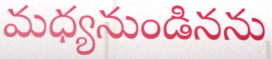
మధ్యనుండినను